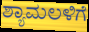
ಶ್ಯಾಮಲಳಿಗೆ